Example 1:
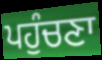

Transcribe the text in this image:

ਪਹੁੰਚਣਾ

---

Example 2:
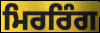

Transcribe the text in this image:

ਮਿਰਰਿੰਗ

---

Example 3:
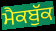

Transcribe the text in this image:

ਮੈਕਬੁੱਕ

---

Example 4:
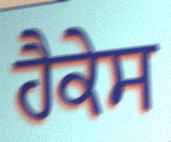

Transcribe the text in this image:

ਹੈਕੇਸ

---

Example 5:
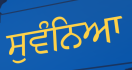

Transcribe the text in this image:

ਸੁਵੰਨਿਆ